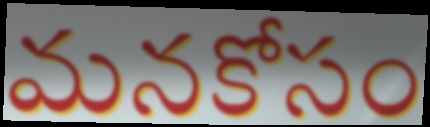
మనకోసం